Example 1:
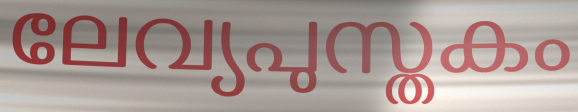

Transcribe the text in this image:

ലേവ്യപുസ്തകം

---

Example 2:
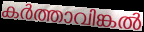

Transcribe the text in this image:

കർത്താവിങ്കൽ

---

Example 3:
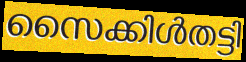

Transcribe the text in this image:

സൈക്കിൾതട്ടി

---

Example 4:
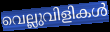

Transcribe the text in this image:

വെല്ലുവിളികൾ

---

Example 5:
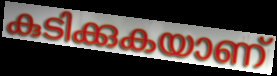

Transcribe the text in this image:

കുടിക്കുകയാണ്